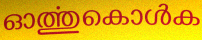
ഓൎത്തുകൊൾക